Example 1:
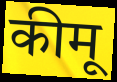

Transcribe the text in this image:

कीमू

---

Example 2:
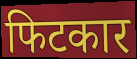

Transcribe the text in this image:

फिटकार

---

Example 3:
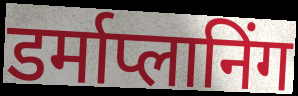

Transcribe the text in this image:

डर्माप्लानिंग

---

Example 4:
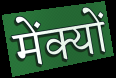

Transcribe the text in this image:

मेंक्यों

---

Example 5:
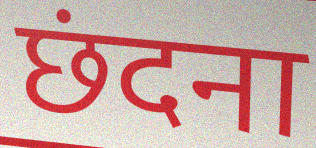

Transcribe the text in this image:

छंदना